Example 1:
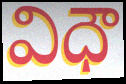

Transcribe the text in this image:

విధౌ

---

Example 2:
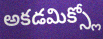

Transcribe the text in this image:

అకడమిక్స్లో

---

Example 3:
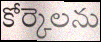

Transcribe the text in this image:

కోర్కెలను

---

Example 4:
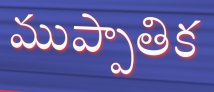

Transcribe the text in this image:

ముప్పాతిక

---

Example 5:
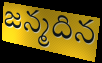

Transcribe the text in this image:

జన్మదిన